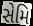
સેમિ